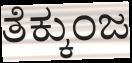
ತೆಕ್ಕುಂಜ